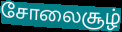
சோலைசூழ்